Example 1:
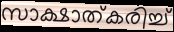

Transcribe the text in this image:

സാക്ഷാത്കരിച്ച്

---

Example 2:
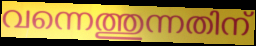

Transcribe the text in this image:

വന്നെത്തുന്നതിന്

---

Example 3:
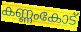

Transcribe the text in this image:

കണ്ണംകോട്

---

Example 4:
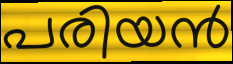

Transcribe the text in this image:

പരിയൻ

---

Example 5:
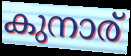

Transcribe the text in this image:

കുനാര്